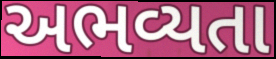
અભવ્યતા